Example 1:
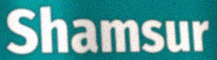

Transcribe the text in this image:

Shamsur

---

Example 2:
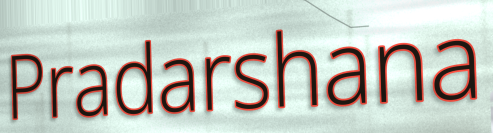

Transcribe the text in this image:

Pradarshana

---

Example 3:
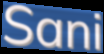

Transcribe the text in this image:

Sani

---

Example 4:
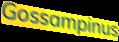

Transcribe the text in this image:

Gossampinus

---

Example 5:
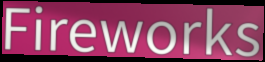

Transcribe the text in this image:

Fireworks